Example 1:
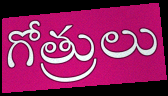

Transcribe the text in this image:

గోత్రులు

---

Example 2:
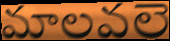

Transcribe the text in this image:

మాలవలె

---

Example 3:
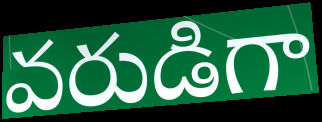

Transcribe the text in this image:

వరుడిగా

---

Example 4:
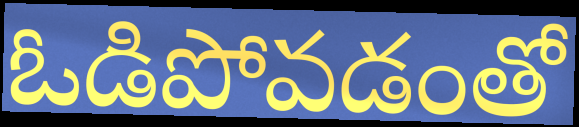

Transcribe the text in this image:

ఓడిపోవడంతో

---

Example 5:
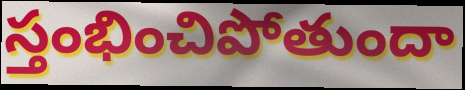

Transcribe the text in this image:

స్తంభించిపోతుందా